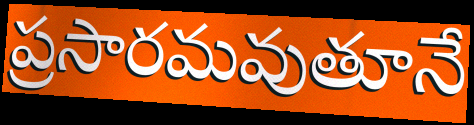
ప్రసారమవుతూనే